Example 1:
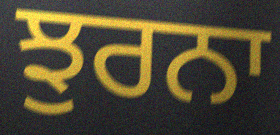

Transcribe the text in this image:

ਝੁਰਨਾ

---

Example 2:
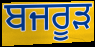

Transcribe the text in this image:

ਬਜਰੂੜ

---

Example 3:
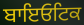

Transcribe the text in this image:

ਬਾਇਓਟਿਕ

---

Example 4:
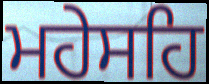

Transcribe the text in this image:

ਮਹੇਸਹਿ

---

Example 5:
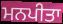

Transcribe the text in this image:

ਮਨਪੀਤਾ